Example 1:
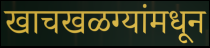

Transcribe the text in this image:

खाचखळग्यांमधून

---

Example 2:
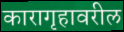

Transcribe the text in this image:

कारागृहावरील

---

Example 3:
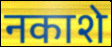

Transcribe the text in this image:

नकाशे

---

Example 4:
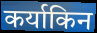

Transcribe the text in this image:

कर्याकिन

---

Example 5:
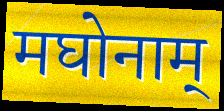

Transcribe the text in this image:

मघोनाम्